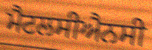
ਮੈਟਲਸੀਐਨਸੀ